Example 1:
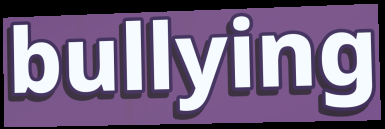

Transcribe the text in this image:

bullying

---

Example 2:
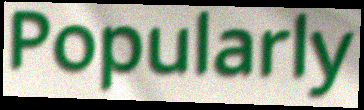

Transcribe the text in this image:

Popularly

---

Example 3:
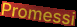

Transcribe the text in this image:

Promessi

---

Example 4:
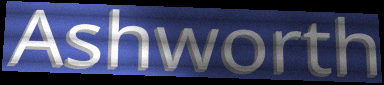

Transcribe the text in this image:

Ashworth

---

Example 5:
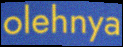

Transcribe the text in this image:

olehnya